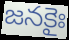
జనకైః